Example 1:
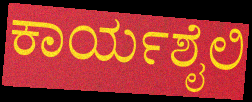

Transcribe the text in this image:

ಕಾರ್ಯಶೈಲಿ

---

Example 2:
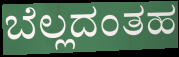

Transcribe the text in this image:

ಬೆಲ್ಲದಂತಹ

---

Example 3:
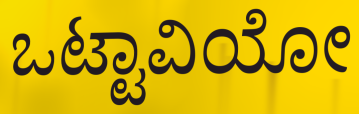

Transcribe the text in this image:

ಒಟ್ಟಾವಿಯೋ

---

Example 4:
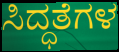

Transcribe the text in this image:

ಸಿದ್ಧತೆಗಳ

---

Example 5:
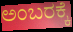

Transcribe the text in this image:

ಅಂಬರಕ್ಕೆ